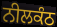
ਨੀਲਕੰਠ